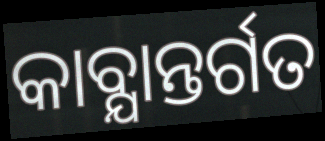
କାବ୍ଯାନ୍ତର୍ଗତ